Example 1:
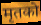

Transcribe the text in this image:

मृतको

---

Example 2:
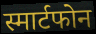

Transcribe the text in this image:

स्मार्टफोन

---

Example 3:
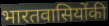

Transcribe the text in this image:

भारतवासियोंकी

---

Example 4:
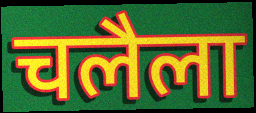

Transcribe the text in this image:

चलैला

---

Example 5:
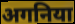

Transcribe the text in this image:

अगनिया